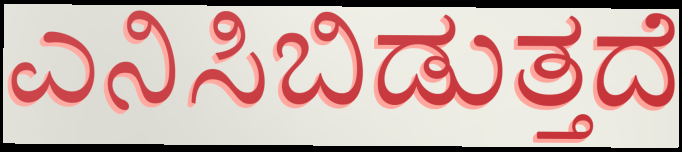
ಎನಿಸಿಬಿಡುತ್ತದೆ